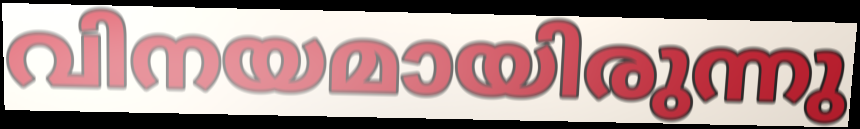
വിനയമായിരുന്നു